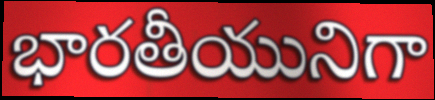
భారతీయునిగా